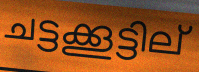
ചട്ടക്കൂട്ടില്